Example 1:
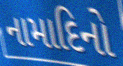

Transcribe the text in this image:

નામાદિનો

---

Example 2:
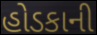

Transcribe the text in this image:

હોડકાની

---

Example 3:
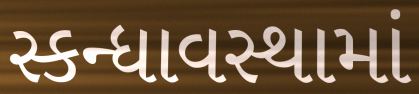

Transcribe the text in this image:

સ્કન્ધાવસ્થામાં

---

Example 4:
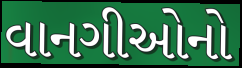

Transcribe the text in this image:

વાનગીઓનો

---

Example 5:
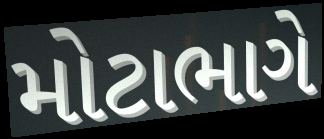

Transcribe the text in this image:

મોટાભાગે